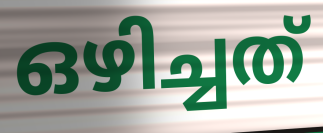
ഒഴിച്ചത്